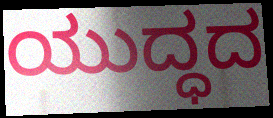
ಯುದ್ಧದ